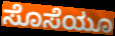
ಸೊಸೆಯೂ